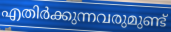
എതിർക്കുന്നവരുമുണ്ട്